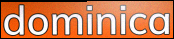
dominica